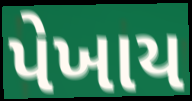
પેખાય